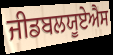
ਜੀਡਬਲਯੂਏਐਸ